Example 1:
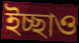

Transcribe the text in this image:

ইচ্ছাও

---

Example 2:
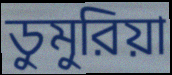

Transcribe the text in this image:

ডুমুরিয়া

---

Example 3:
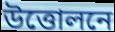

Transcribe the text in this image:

উত্তোলনে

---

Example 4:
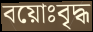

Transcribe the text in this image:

বয়োঃবৃদ্ধ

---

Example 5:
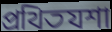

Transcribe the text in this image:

প্রথিতযশা